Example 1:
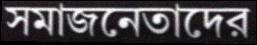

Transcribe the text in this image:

সমাজনেতাদের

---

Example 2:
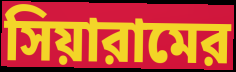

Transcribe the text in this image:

সিয়ারামের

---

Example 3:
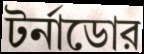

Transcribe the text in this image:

টর্নাডোর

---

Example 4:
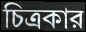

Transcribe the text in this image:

চিত্রকার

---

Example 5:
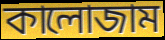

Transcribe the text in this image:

কালোজাম